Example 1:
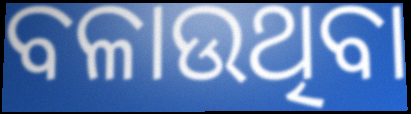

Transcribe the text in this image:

ବଳାଉଥିବା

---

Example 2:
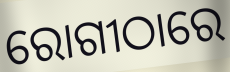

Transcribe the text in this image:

ରୋଗୀଠାରେ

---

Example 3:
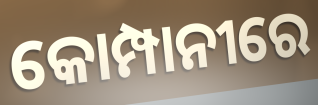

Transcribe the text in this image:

କୋମ୍ପାନୀରେ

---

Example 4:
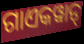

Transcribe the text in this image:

ଗାଏକୱାଡ୍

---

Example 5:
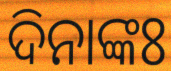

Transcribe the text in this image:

ଦିନାଙ୍କଃ